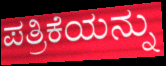
ಪತ್ರಿಕೆಯನ್ನು